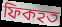
ফিকহত